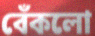
বেঁকলো